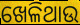
ଖେଳିଥାଉ